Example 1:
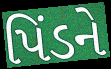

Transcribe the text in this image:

પિંડને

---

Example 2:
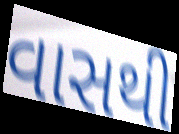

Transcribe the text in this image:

વાસથી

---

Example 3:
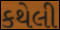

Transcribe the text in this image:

કથેલી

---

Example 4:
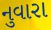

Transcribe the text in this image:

નુવારા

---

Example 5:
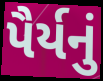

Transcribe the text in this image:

પૈર્યનું